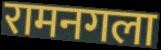
रामनगला